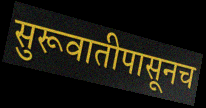
सुरूवातीपासूनच